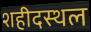
शहीदस्थल